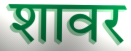
शावर